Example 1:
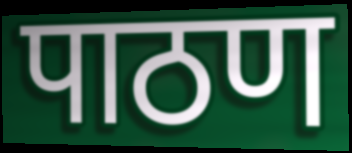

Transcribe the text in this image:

पाठण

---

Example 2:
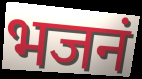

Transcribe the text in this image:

भजनं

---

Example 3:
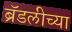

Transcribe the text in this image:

ब्रॅडलीच्या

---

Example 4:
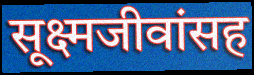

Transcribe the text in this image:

सूक्ष्मजीवांसह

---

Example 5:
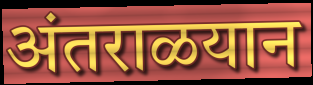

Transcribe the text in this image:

अंतराळयान